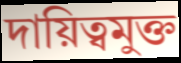
দায়িত্বমুক্ত